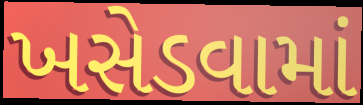
ખસેડવામાં